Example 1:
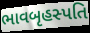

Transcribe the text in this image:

ભાવબૃહસ્પતિ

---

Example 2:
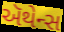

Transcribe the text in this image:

ઍથેન્સ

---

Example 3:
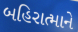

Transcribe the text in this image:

બહિરાત્માને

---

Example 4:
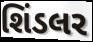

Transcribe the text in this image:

શિંડલર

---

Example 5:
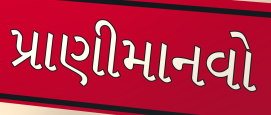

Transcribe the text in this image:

પ્રાણીમાનવો